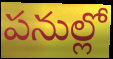
పనుల్లో